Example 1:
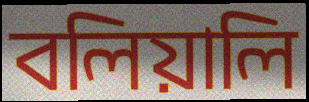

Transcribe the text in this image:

বলিয়ালি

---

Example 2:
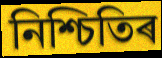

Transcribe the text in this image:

নিশ্চিতিৰ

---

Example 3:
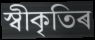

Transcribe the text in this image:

স্বীকৃতিৰ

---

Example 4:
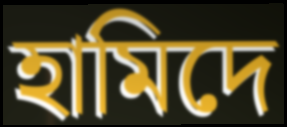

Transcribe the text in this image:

হামিদে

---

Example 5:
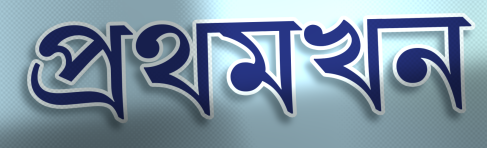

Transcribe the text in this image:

প্ৰথমখন